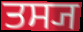
ਤਸ੍ਯ